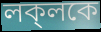
লক্‌লকে